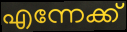
എന്നേക്ക്